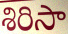
శిరిసా